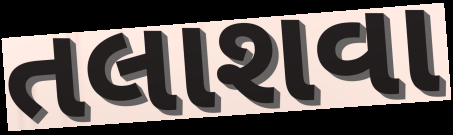
તલાશવા